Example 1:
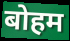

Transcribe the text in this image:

बोहम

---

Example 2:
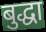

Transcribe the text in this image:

बुद्धा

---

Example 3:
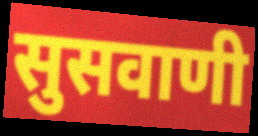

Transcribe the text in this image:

सुसवाणी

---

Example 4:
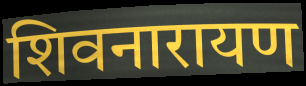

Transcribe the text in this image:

शिवनारायण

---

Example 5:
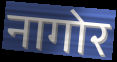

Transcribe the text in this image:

नागोर